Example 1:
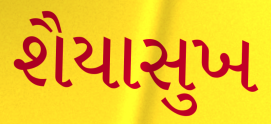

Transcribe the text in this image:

શૈયાસુખ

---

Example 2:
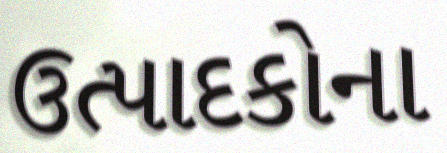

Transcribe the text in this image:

ઉત્પાદકોના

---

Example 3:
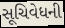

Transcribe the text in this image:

સૂચિવેધની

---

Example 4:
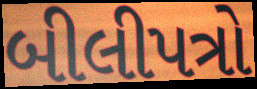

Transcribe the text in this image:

બીલીપત્રો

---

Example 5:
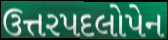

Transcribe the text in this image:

ઉત્તરપદલોપેન